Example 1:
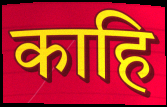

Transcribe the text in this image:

काहि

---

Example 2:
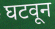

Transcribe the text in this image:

घटवून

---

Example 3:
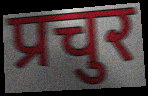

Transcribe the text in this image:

प्रचुर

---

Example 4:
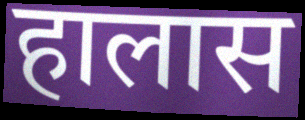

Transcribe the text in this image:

हालास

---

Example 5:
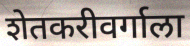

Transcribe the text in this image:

शेतकरीवर्गाला